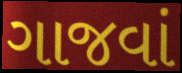
ગાજવાં